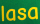
lasa